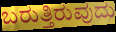
ಬರುತ್ತಿರುವುದು